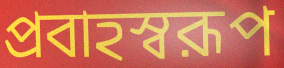
প্রবাহস্বরূপ